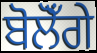
ਬੋਲੋਁਗੇ